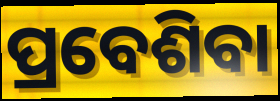
ପ୍ରବେଶିବା